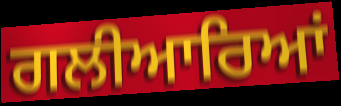
ਗਲੀਆਰਿਆਂ